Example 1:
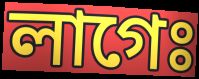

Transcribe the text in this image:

লাগেঃ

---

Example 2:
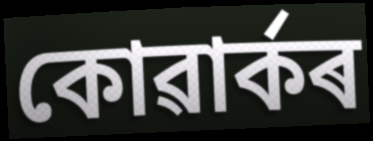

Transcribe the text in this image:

কোৱাৰ্কৰ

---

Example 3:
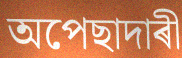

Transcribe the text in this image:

অপেছাদাৰী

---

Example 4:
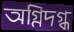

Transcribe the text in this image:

অগ্নিদগ্ধ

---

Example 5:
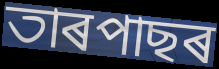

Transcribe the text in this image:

তাৰপাছৰ